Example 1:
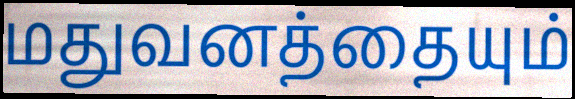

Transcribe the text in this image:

மதுவனத்தையும்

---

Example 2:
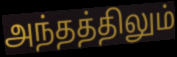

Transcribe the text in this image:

அந்தத்திலும்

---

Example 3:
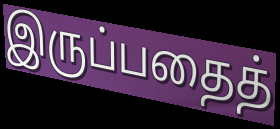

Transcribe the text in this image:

இருப்பதைத்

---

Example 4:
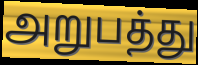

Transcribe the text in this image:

அறுபத்து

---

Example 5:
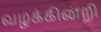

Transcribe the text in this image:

வழக்கின்றி